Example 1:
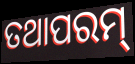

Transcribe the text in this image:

ତଥାପରମ୍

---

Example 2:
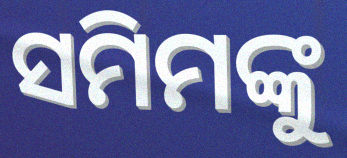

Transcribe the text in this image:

ସମିମଙ୍କୁ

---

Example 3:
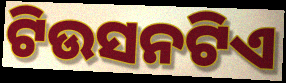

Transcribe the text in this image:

ଟିଉସନଟିଏ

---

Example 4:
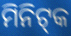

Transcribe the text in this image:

ମିନିଟ୍‌କ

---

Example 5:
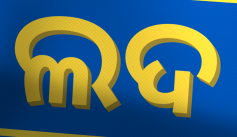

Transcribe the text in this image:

ଲଦ